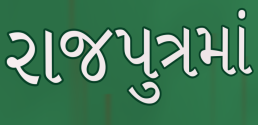
રાજપુત્રમાં